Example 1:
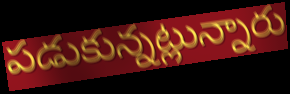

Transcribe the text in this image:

పడుకున్నట్లున్నారు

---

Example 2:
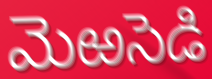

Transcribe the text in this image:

మెఱసెడి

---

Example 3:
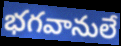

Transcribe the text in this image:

భగవానులే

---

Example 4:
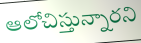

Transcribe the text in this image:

ఆలోచిస్తున్నారని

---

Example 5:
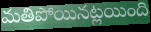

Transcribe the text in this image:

మతిపోయినట్లయింది